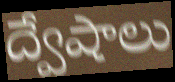
ద్వేషాలు